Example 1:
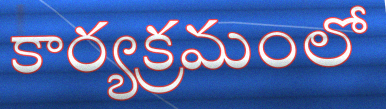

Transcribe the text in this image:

కార్యక్రమంలో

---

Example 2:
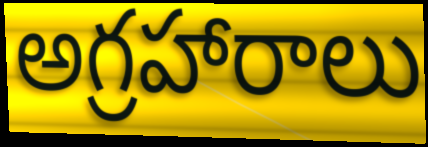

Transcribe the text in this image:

అగ్రహారాలు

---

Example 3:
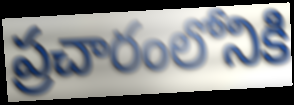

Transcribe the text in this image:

ప్రచారంలోనికి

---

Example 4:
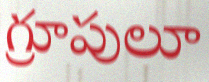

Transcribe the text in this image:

గ్రూపులూ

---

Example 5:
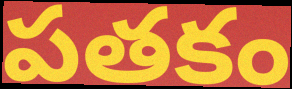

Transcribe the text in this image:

పతకం